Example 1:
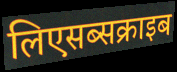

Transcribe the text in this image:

लिएसब्सक्राइब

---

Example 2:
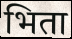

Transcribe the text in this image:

भिता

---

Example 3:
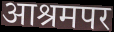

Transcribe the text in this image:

आश्रमपर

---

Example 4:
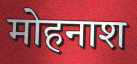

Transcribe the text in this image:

मोहनाश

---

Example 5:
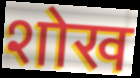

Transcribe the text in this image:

शोख